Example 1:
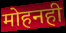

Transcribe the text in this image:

मोहनही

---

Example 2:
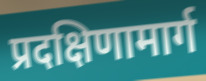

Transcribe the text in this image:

प्रदक्षिणामार्ग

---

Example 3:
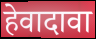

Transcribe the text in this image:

हेवादावा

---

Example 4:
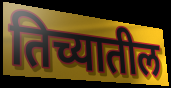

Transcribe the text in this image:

तिच्यातील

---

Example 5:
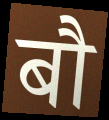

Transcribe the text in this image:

बौ